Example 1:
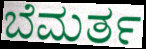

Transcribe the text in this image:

ಬೆಮರ್ತ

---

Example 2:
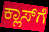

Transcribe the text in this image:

ಕ್ಲಾಸ್‍ಗೆ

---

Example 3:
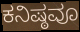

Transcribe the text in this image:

ಕನಿಷ್ಠವೂ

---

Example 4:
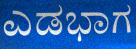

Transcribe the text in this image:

ಎಡಭಾಗ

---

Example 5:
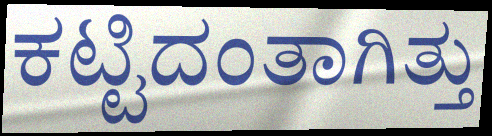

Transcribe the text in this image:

ಕಟ್ಟಿದಂತಾಗಿತ್ತು